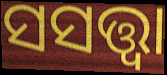
ସସତ୍ତ୍ୱା